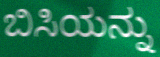
ಬಿಸಿಯನ್ನು